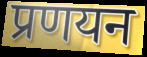
प्रणयन